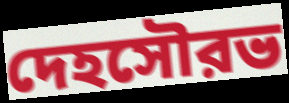
দেহসৌরভ